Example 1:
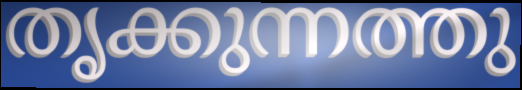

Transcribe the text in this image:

തൃക്കുന്നത്തു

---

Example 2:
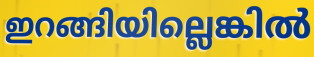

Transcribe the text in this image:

ഇറങ്ങിയില്ലെങ്കിൽ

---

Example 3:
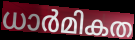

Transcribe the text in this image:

ധാർമികത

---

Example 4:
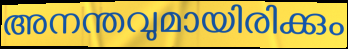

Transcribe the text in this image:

അനന്തവുമായിരിക്കും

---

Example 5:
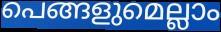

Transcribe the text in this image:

പെങ്ങളുമെല്ലാം